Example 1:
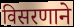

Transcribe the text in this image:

विसरणाने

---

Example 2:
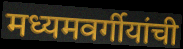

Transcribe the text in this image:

मध्यमवर्गीयांची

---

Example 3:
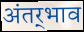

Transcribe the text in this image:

अंतर्भाव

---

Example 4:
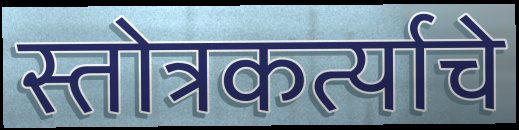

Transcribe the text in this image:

स्तोत्रकर्त्याचे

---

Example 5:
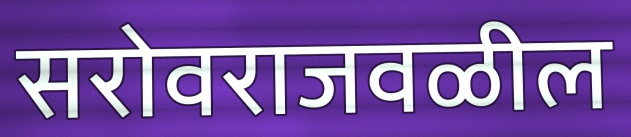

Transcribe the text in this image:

सरोवराजवळील